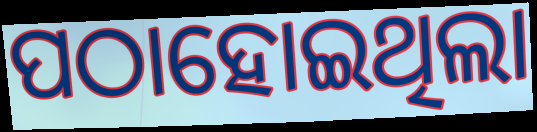
ପଠାହୋଇଥିଲା